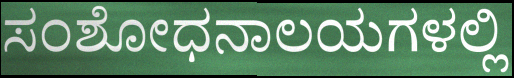
ಸಂಶೋಧನಾಲಯಗಳಲ್ಲಿ